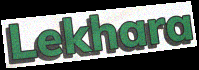
Lekhara